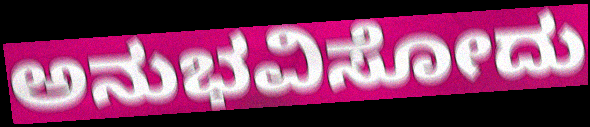
ಅನುಭವಿಸೋದು